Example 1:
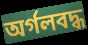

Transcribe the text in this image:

অর্গলবদ্ধ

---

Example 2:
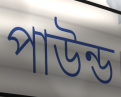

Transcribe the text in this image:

পাউন্ড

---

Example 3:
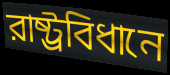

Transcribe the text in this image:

রাষ্ট্রবিধানে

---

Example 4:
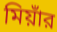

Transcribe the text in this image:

মিয়াঁর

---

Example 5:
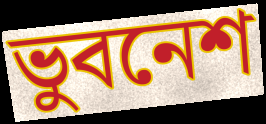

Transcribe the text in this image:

ভুবনেশ